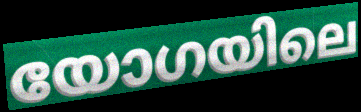
യോഗയിലെ